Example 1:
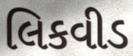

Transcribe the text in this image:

લિકવીડ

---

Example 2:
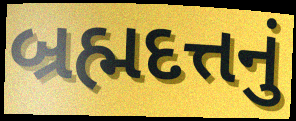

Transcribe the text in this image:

બ્રહ્મદત્તનું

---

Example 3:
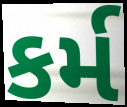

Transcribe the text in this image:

કર્મ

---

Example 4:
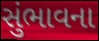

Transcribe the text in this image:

સુંભાવના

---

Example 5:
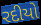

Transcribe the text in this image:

રદીયો